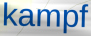
kampf